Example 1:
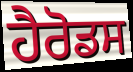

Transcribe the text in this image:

ਹੈਰੋਡਸ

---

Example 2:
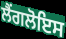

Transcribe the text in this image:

ਲੈਂਗਲੋਇਸ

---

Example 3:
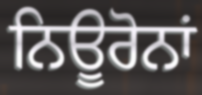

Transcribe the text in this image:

ਨਿਊਰੋਨਾਂ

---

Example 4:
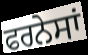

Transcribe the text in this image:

ਫਰਨੇਸਾਂ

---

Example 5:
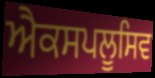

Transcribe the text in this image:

ਐਕਸਪਲੂਸਿਵ